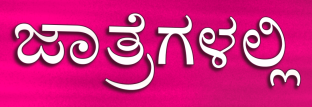
ಜಾತ್ರೆಗಳಲ್ಲಿ